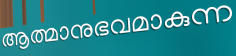
ആത്മാനുഭവമാകുന്ന